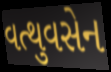
વત્થુવસેન